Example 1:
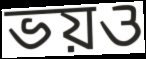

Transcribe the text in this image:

ভয়ও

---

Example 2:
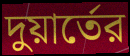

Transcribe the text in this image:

দুয়ার্তের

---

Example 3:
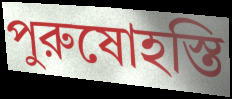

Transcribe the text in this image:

পুরুষোহস্তি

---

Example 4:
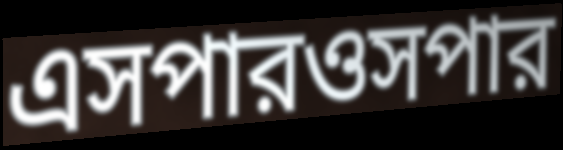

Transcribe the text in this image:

এসপারওসপার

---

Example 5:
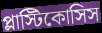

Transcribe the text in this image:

প্লাস্টিকোসিস